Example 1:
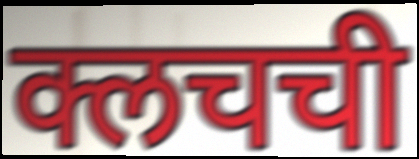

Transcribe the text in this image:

क्लचची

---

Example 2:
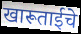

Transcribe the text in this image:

खारूताईचे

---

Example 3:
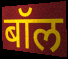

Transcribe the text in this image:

बॉल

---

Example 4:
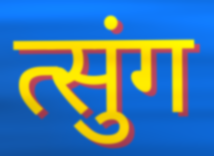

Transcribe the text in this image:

त्सुंग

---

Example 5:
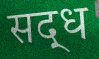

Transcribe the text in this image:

सद्ध